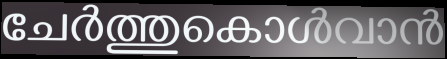
ചേർത്തുകൊൾവാൻ